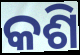
କଶି